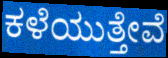
ಕಳೆಯುತ್ತೇವೆ